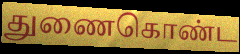
துணைகொண்ட